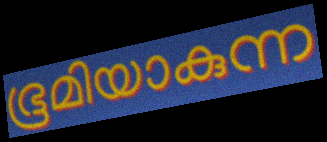
ഭൂമിയാകുന്ന